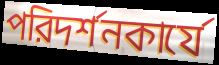
পরিদর্শনকার্যে